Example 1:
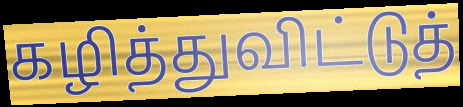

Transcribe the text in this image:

கழித்துவிட்டுத்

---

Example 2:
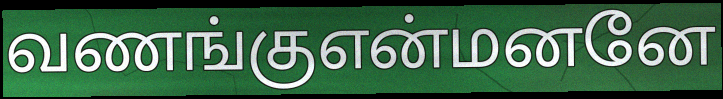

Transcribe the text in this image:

வணங்குஎன்மனனே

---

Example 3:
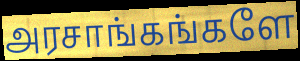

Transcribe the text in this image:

அரசாங்கங்களே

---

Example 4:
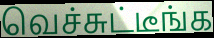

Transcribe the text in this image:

வெச்சுட்டீங்க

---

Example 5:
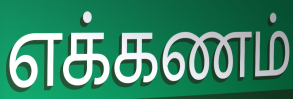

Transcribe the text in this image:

எக்கணம்